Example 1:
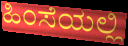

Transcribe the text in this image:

ಹಿಂಸೆಯಲ್ಲಿ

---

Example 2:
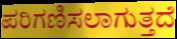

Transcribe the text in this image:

ಪರಿಗಣಿಸಲಾಗುತ್ತದೆ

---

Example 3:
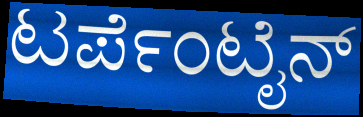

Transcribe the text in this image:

ಟರ್ಪೆಂಟೈನ್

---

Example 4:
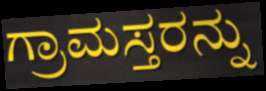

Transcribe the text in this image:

ಗ್ರಾಮಸ್ತರನ್ನು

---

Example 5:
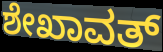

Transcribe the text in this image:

ಶೇಖಾವತ್